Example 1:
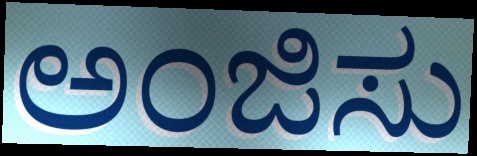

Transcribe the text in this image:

ಅಂಜಿಸು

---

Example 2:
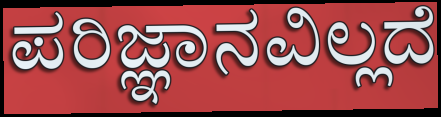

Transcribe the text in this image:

ಪರಿಜ್ಞಾನವಿಲ್ಲದೆ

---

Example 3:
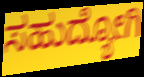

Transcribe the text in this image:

ಸಹುದ್ಯೋಗಿ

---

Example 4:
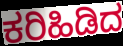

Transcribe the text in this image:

ಕರಿಹಿಡಿದ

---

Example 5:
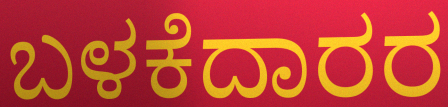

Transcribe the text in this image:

ಬಳಕೆದಾರರ